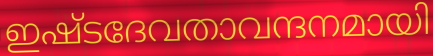
ഇഷ്ടദേവതാവന്ദനമായി